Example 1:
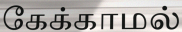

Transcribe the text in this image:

கேக்காமல்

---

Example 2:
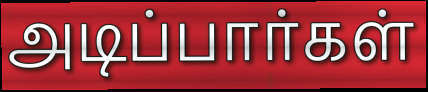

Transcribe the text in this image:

அடிப்பார்கள்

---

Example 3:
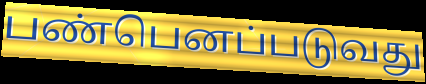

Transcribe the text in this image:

பண்பெனப்படுவது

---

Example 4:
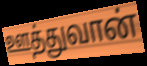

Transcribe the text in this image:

ஊத்துவான்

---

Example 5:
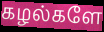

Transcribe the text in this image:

கழல்களே